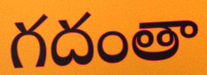
గదంతా